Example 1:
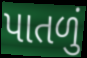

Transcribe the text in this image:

પાતળું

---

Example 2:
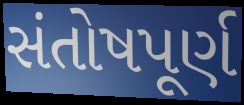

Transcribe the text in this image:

સંતોષપૂર્ણ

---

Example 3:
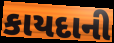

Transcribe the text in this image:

કાયદાની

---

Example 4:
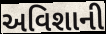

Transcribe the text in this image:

અવિશાની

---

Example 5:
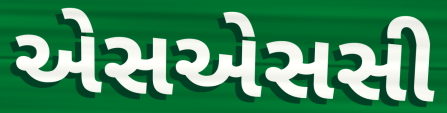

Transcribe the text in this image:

એસએસસી